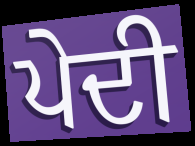
ਪੇਦੀ